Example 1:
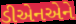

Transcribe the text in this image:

ડીએનએને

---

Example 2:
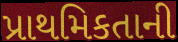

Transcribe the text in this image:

પ્રાથમિકતાની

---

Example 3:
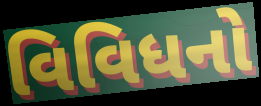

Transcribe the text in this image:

વિવિધનો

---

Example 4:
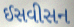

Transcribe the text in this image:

ઈસવીસન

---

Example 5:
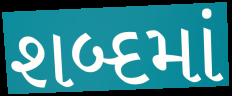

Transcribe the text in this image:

શબ્દમાં